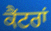
ਕੈਂਟਰਾਂ